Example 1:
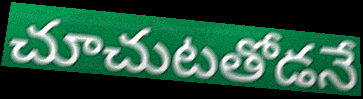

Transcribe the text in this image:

చూచుటతోడనే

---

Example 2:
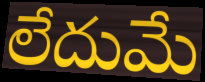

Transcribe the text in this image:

లేదుమే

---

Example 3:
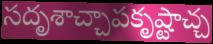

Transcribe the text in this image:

సదృశాచ్చాపకృష్టాచ్చ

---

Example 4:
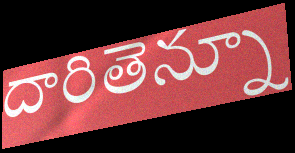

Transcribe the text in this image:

దారితెన్నూ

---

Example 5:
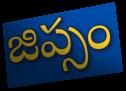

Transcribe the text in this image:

జిప్సం